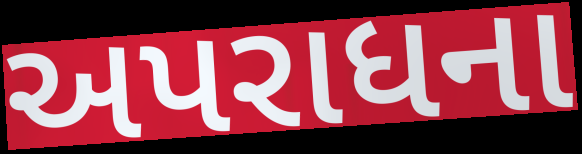
અપરાધના